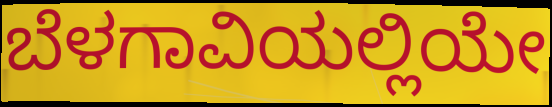
ಬೆಳಗಾವಿಯಲ್ಲಿಯೇ